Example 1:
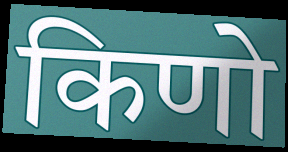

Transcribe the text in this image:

किणो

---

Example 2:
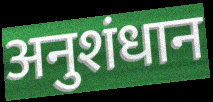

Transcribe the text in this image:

अनुशंधान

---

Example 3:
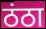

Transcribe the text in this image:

ठंठा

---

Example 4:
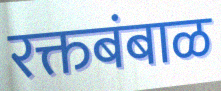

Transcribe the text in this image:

रक्तबंबाळ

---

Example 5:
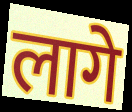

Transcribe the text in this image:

लागे